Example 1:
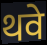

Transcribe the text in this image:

थवे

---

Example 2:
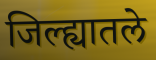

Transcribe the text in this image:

जिल्ह्यातले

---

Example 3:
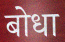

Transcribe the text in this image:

बोधा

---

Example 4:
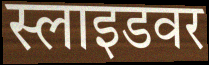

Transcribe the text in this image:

स्‍लाइडवर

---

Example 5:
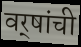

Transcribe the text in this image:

वर्षांची